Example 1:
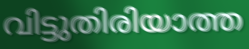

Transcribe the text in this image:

വിട്ടുതിരിയാത്ത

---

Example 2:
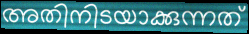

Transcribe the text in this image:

അതിനിടയാക്കുന്നത്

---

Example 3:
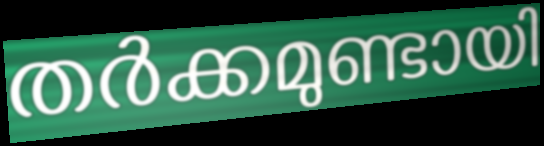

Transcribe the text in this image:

തർക്കമുണ്ടായി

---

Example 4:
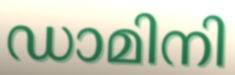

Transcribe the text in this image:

ഡാമിനി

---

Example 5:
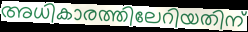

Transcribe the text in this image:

അധികാരത്തിലേറിയതിന്